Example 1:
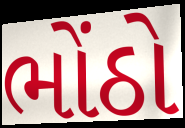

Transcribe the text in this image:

ભોંઠો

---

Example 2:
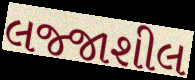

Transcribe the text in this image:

લજ્જાશીલ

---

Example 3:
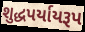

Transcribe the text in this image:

શુદ્ધપર્યાયરૂપ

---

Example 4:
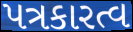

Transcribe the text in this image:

પત્રકારત્વ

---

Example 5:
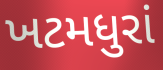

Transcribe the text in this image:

ખટમધુરાં